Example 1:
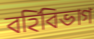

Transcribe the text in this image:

বর্হিবিভাগ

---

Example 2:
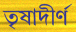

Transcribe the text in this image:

তৃষাদীর্ণ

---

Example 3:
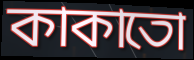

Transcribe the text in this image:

কাকাতো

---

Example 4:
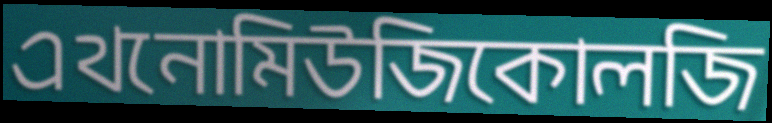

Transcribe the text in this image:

এথনোমিউজিকোলজি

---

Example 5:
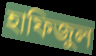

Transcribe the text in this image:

হাফিজুল